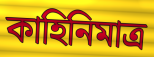
কাহিনিমাত্র